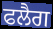
ਫਲੈਗ